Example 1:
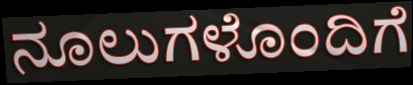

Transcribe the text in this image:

ನೂಲುಗಳೊಂದಿಗೆ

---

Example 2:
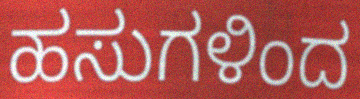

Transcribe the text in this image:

ಹಸುಗಳಿಂದ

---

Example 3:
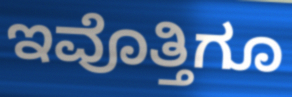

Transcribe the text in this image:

ಇವೊತ್ತಿಗೂ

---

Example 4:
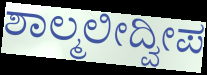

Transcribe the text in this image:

ಶಾಲ್ಮಲೀದ್ವೀಪ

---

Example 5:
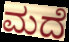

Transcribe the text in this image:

ಮದೆ